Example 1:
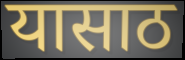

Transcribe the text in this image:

यासाठ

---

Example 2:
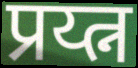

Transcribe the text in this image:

प्रय्त्न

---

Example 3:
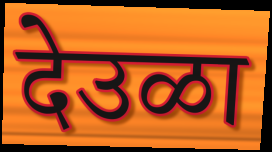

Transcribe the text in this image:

देउळा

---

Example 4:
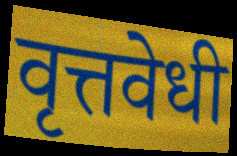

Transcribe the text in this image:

वृत्तवेधी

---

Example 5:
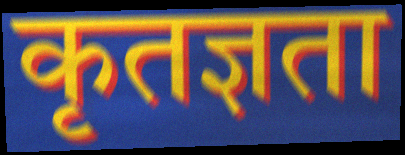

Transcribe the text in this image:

कृतज्ञता